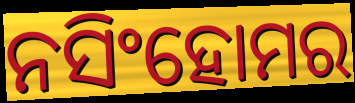
ନସିଂହୋମର